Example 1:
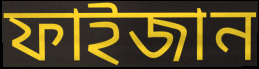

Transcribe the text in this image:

ফাইজান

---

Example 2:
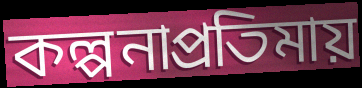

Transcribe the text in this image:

কল্পনাপ্রতিমায়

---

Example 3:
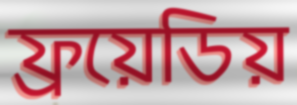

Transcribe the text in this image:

ফ্রয়েডিয়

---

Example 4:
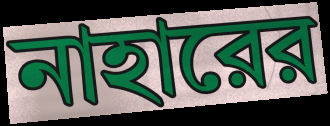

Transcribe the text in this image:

নাহারের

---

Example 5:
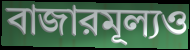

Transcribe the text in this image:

বাজারমূল্যও